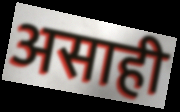
असाही